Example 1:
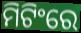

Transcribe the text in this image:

ମିଟିଂରେ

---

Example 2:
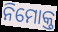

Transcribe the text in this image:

ନିମୋକ୍ତ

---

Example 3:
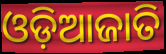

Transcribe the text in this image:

ଓଡ଼ିଆଜାତି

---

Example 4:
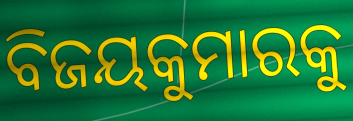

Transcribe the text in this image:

ବିଜୟକୁମାରକୁ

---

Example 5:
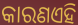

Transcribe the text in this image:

କାରଣଏହି